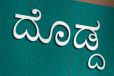
ದೊಡ್ದ